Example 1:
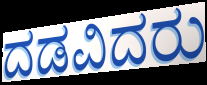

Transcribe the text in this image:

ದಡವಿದರು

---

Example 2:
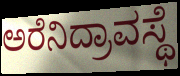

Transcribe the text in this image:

ಅರೆನಿದ್ರಾವಸ್ಥೆ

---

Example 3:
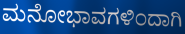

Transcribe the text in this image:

ಮನೋಭಾವಗಳಿಂದಾಗಿ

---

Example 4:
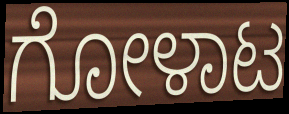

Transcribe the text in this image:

ಗೋಳಾಟ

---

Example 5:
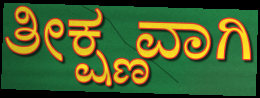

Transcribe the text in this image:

ತೀಕ್ಷ್ಣವಾಗಿ